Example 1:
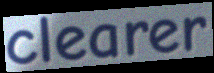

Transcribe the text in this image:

clearer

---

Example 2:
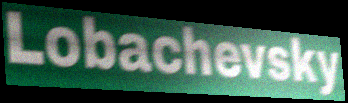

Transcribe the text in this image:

Lobachevsky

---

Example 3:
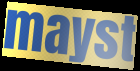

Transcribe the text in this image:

mayst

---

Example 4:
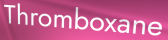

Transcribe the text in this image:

Thromboxane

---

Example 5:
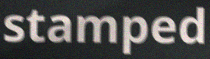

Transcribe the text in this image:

stamped